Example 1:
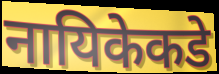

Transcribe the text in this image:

नायिकेकडे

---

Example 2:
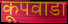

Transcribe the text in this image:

कूपवाडा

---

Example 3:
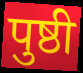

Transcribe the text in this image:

पुष्ठी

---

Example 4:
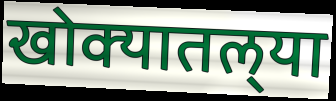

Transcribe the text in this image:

खोक्यातल्या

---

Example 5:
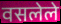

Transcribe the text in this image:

वसलेले